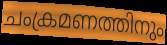
ചംക്രമണത്തിനും